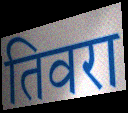
तिवरा